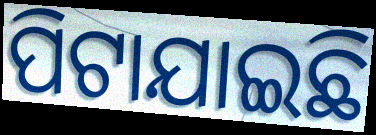
ପିଟାଯାଇଛି